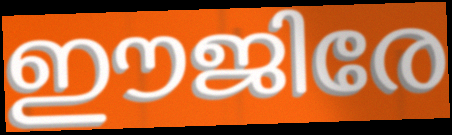
ഈജിരേ